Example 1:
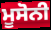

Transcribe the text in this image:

ਮੂਸੋਨੀ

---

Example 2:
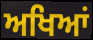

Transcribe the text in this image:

ਅਖਿਆਂ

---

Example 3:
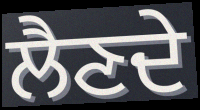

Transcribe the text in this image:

ਲੈਣਦੇ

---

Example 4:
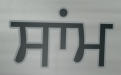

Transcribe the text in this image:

ਸਾਂਮ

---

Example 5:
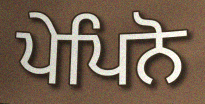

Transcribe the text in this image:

ਪੇਪਿਨੋ